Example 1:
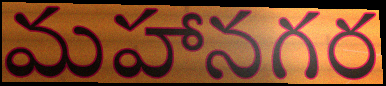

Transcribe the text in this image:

మహానగర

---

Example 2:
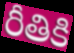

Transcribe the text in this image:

రీతికి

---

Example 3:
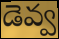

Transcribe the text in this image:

డెవ్వ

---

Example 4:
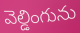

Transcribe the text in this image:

వెల్డింగును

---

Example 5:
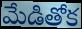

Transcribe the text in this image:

మేడితోక